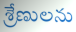
శ్రేణులను